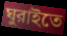
ঘুরাইতে